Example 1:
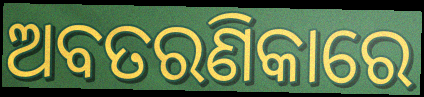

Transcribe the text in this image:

ଅବତରଣିକାରେ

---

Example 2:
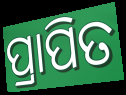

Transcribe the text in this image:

ପ୍ରାପିତ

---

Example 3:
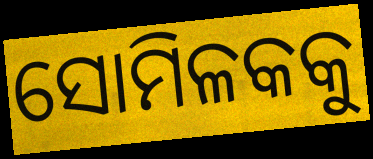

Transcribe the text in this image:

ସୋମିଳକକୁ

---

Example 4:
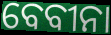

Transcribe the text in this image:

ବେବୀନା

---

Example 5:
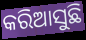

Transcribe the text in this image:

କରିଆସୁଛି